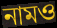
নামও